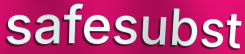
safesubst